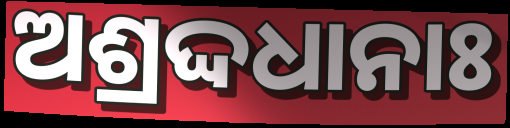
ଅଶ୍ରଦ୍ଦଧାନାଃ